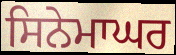
ਸਿਨੇਮਾਘਰ